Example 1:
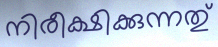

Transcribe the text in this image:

നിരീക്ഷിക്കുന്നതു്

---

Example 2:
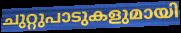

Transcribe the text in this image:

ചുറ്റുപാടുകളുമായി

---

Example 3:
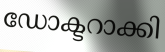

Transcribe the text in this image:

ഡോക്ടറാക്കി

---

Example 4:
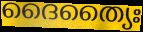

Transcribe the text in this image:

ദൈത്യൈഃ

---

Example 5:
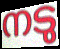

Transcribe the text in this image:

നടു